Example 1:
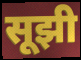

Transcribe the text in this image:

सूझी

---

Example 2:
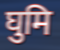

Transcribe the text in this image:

घुमि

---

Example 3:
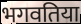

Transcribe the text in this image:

भगवतिया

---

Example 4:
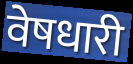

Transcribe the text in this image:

वेषधारी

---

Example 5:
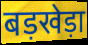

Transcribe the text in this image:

बड़खेड़ा